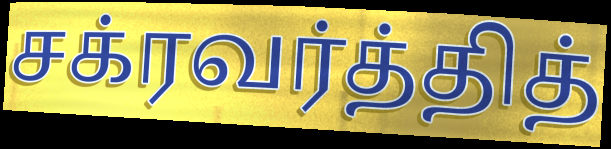
சக்ரவர்த்தித்